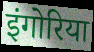
इंगोरिया